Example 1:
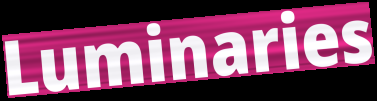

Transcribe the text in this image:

Luminaries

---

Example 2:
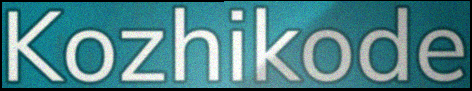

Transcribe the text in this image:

Kozhikode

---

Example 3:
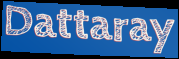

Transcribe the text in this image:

Dattaray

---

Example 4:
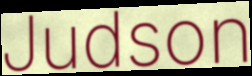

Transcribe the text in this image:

Judson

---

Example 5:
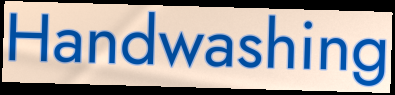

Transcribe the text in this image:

Handwashing